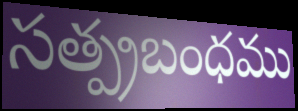
సత్ప్రబంధము